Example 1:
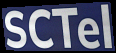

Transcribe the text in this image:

SCTel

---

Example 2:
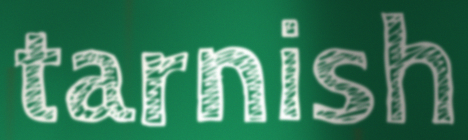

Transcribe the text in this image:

tarnish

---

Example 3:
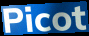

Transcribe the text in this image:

Picot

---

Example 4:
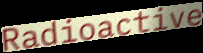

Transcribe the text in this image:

Radioactive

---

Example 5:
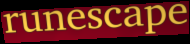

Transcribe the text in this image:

runescape